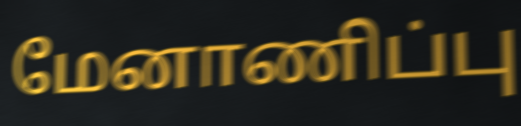
மேனாணிப்பு